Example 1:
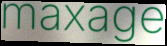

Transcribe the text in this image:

maxage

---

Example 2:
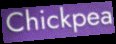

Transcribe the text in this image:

Chickpea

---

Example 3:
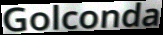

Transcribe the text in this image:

Golconda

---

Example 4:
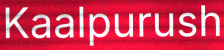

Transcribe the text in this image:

Kaalpurush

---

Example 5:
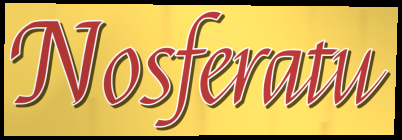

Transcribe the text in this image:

Nosferatu